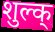
शुल्क्